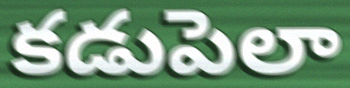
కడుపెలా